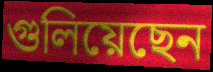
গুলিয়েছেন